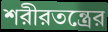
শরীরতন্ত্রের